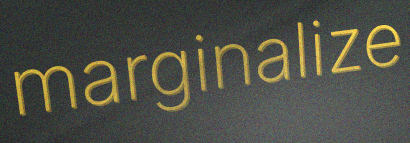
marginalize